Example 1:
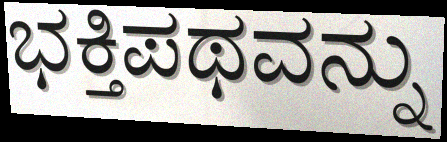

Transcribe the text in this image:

ಭಕ್ತಿಪಥವನ್ನು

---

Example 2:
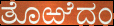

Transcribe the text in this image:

ತೊಱೆದಂ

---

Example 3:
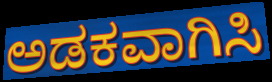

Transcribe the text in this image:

ಅಡಕವಾಗಿಸಿ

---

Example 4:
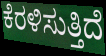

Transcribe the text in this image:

ಕೆರಳಿಸುತ್ತಿದೆ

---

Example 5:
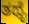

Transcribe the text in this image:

ತಥೈ